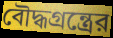
বৌদ্ধগ্রন্ত্রের